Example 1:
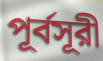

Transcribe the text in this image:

পূর্বসূরী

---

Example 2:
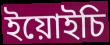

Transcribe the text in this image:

ইয়োইচি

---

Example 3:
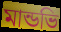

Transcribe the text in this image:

মান্ডভি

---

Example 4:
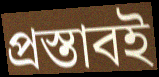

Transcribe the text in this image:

প্রস্তাবই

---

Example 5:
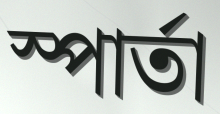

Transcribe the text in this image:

স্পার্তা